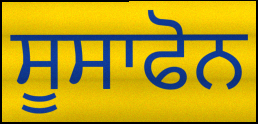
ਸੂਸਾਫੋਨ